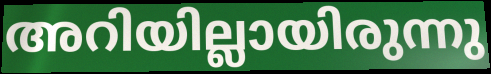
അറിയില്ലായിരുന്നു